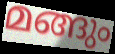
മങ്ങും